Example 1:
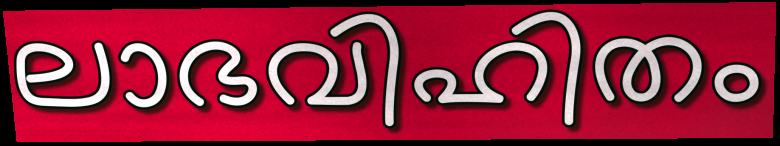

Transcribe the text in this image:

ലാഭവിഹിതം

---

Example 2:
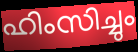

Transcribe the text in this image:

ഹിംസിച്ചും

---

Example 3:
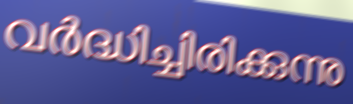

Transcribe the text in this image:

വർദ്ധിച്ചിരിക്കുന്നു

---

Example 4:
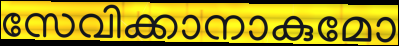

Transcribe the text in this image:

സേവിക്കാനാകുമോ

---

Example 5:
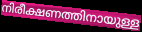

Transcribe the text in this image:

നിരീക്ഷണത്തിനായുള്ള